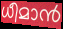
ധീമാൻ